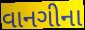
વાનગીના